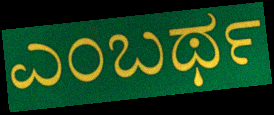
ಎಂಬರ್ಥ